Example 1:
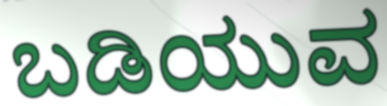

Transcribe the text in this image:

ಬಡಿಯುವ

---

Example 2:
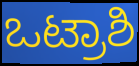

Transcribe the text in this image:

ಒಟ್ರಾಶಿ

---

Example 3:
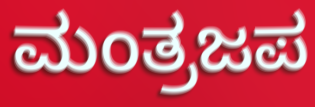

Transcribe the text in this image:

ಮಂತ್ರಜಪ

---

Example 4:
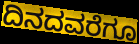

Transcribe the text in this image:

ದಿನದವರೆಗೂ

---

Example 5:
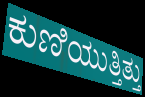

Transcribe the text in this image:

ಕುಣಿಯುತ್ತಿತ್ತು